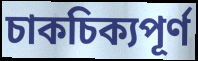
চাকচিক্যপূর্ণ